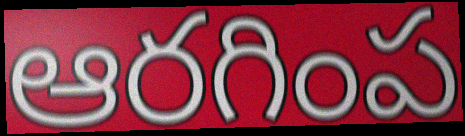
ఆరగింప